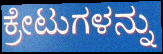
ಕ್ರೇಟುಗಳನ್ನು